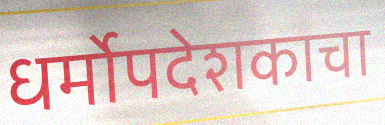
धर्मोपदेशकाचा